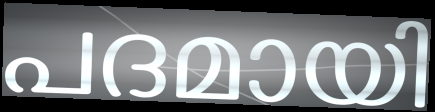
പദമായി